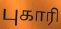
புகாரி